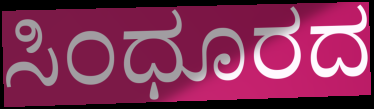
ಸಿಂಧೂರದ